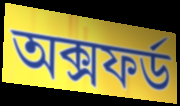
অক্সফৰ্ড